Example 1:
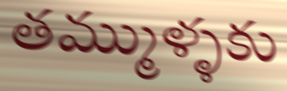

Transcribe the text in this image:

తమ్ముళ్ళకు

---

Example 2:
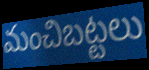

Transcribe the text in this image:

మంచిబట్టలు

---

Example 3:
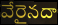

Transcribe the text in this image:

వేరైనదా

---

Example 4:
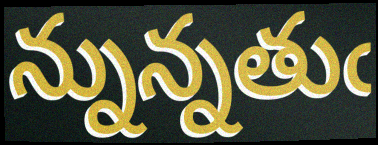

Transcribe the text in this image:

న్నున్నతుఁ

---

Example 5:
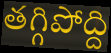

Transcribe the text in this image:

తగ్గిపోద్ది